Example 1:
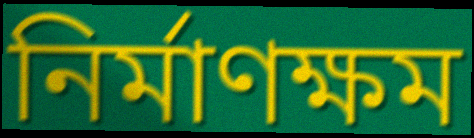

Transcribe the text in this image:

নির্মাণক্ষম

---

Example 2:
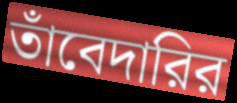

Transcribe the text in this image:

তাঁবেদারির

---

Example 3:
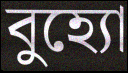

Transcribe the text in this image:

বুহ্যো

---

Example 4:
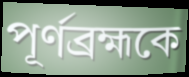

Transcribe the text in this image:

পূর্ণব্রহ্মকে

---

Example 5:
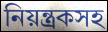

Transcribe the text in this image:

নিয়ন্ত্রকসহ